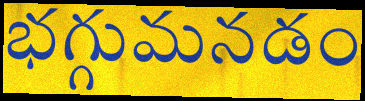
భగ్గుమనడం